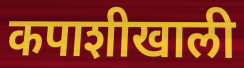
कपाशीखाली